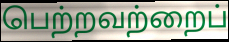
பெற்றவற்றைப்